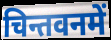
चिन्तवनमें